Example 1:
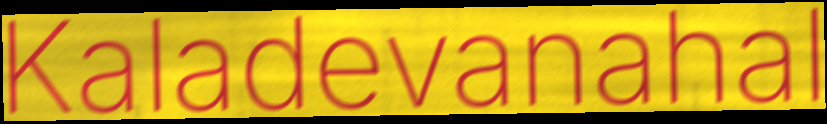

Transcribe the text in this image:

Kaladevanahal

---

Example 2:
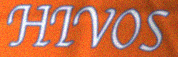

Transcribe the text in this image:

HIVOS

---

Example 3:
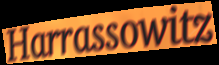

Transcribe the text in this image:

Harrassowitz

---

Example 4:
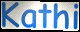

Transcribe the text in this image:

Kathi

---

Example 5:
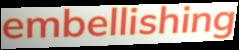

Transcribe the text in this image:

embellishing